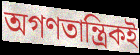
অগণতান্ত্রিকই